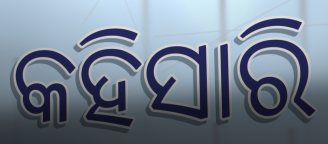
କହିସାରି